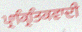
ਪ੍ਰਾਕ੍ਰਿਤਿਕਵਾਦੀ